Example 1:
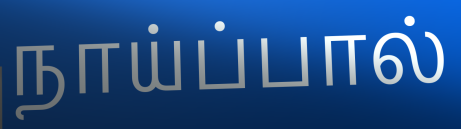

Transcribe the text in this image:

நாய்ப்பால்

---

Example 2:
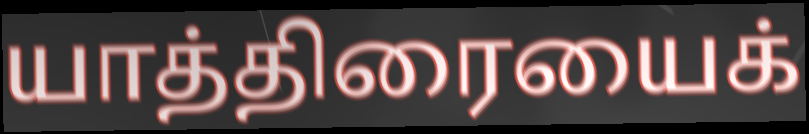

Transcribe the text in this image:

யாத்திரையைக்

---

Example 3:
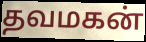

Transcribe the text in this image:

தவமகன்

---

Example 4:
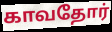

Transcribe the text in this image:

காவதோர்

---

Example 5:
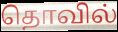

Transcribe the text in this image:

தொவில்